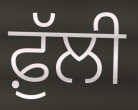
ਫ਼ੁੱਲੀ